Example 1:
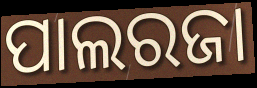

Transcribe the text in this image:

ପାଲରଜା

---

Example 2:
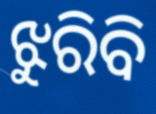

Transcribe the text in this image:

ଝୁରିବି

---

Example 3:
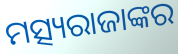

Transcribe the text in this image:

ମତ୍ସ୍ୟରାଜାଙ୍କର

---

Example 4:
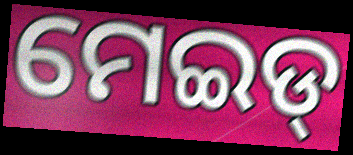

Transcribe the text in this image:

ମେଇଡ୍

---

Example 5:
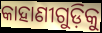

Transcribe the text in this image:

କାହାଣୀଗୁଡ଼ିକୁ